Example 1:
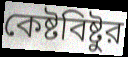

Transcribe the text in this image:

কেষ্টবিষ্টুর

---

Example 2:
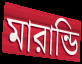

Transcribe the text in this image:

মারান্ডি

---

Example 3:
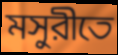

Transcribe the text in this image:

মসুরীতে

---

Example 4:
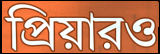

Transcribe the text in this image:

প্রিয়ারও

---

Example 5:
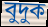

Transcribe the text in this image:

বুদুক